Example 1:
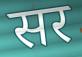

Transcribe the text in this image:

सर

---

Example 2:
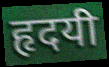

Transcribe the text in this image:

हृदयी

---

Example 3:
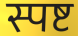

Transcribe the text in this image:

स्पष्ट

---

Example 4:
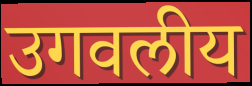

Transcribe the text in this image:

उगवलीय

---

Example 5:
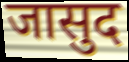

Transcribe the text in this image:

जासुद